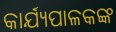
କାର୍ଯ୍ୟପାଳକଙ୍କ